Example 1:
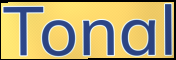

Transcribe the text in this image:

Tonal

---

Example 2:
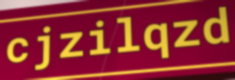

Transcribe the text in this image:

cjzilqzd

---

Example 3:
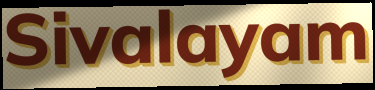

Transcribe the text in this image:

Sivalayam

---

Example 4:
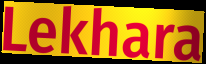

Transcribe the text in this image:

Lekhara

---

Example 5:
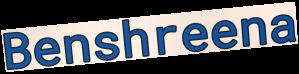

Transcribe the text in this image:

Benshreena